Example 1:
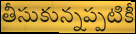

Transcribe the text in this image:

తీసుకున్నప్పటికీ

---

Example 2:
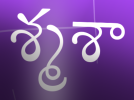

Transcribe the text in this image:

శ్మశా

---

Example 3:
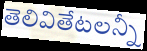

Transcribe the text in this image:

తెలివితేటలన్నీ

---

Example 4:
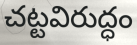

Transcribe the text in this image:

చట్టవిరుద్ధం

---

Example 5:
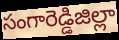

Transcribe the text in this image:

సంగారెడ్డిజిల్లా